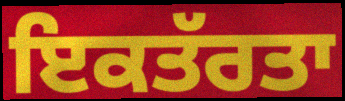
ਇਕਤੱਰਤਾ